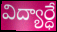
విద్యార్ధే